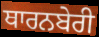
ਥਾਰਨਬੇਰੀ